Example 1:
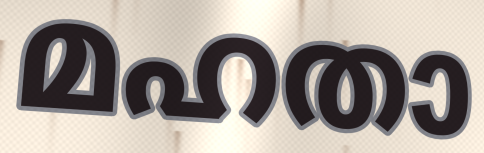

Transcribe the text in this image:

മഹതാ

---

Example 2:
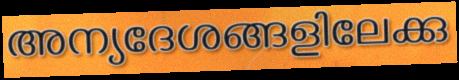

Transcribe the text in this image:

അന്യദേശങ്ങളിലേക്കു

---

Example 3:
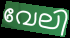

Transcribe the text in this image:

വേലി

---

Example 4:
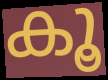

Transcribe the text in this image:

കൂ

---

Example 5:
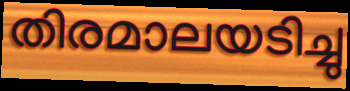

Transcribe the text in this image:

തിരമാലയടിച്ചു